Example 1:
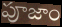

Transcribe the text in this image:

పూజాం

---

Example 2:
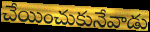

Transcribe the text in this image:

చేయించుకునేవాడు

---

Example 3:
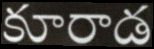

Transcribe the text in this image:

కూరాడ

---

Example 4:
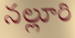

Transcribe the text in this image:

నల్లూరి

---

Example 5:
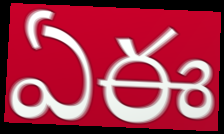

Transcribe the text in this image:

ఏఈ